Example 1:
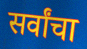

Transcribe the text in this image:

सर्वांचा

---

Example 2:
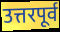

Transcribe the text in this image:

उत्तरपूर्व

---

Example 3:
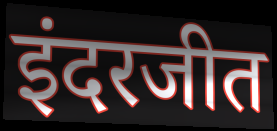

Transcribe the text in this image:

इंदरजीत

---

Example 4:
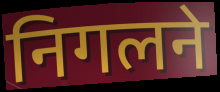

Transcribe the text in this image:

निगलने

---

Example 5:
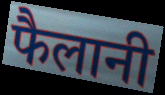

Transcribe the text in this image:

फैलानी